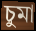
চুমা